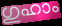
ഗുഹാം